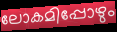
ലോകമിപ്പോഴും